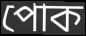
পোক